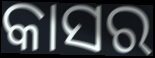
କାସର